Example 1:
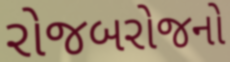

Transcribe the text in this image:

રોજબરોજનો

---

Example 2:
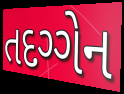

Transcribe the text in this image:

તદગ્ગેન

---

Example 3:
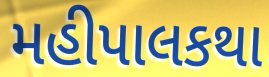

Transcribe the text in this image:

મહીપાલકથા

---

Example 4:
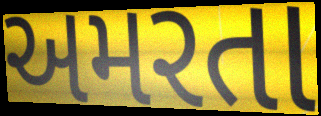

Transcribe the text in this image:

અમરતા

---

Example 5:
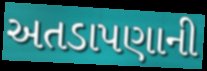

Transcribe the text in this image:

અતડાપણાની